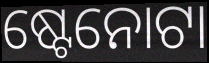
ଷ୍ଟେନୋଟା